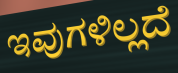
ಇವುಗಳಿಲ್ಲದೆ